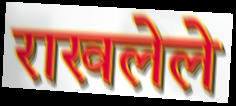
राखलेले